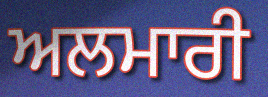
ਅਲਮਾਰੀ